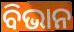
ବିଭାନ